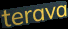
terava